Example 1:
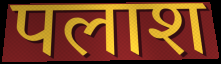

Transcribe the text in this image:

पलाश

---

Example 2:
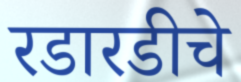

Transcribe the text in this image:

रडारडीचे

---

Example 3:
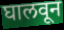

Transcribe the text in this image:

घालवून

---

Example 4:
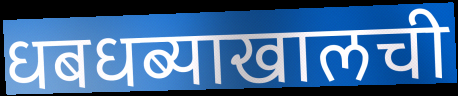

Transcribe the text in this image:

धबधब्याखालची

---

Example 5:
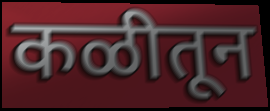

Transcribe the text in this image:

कळीतून